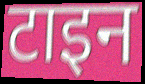
टाइन